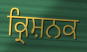
ਕ੍ਰਿਸ਼ਨਕ